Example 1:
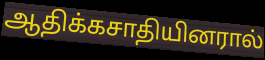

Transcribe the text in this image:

ஆதிக்கசாதியினரால்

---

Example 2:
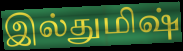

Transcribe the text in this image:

இல்துமிஷ்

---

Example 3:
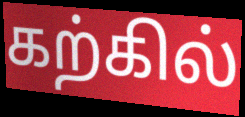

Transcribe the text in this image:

கற்கில்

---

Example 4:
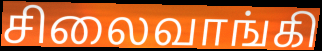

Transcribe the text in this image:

சிலைவாங்கி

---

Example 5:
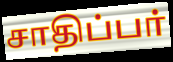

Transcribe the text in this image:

சாதிப்பர்